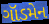
ગૉડમેન